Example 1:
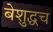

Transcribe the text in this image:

बेशुद्धच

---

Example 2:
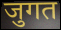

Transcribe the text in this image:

जुगत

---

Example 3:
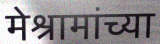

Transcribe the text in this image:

मेश्रामांच्या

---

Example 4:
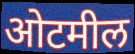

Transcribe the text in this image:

ओटमील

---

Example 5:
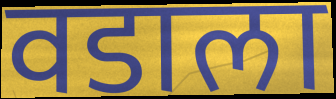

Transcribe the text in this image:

वडाला